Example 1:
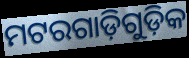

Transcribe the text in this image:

ମଟରଗାଡ଼ିଗୁଡ଼ିକ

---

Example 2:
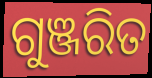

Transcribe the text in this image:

ଗୁଞ୍ଜରିତ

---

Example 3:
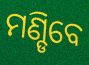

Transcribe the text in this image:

ମଣ୍ଡିବେ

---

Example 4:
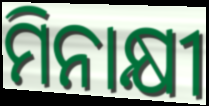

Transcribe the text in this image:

ମିନାକ୍ଷୀ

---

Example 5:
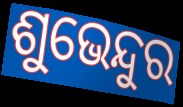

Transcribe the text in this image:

ଶୁଭେନ୍ଦୁର